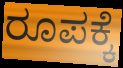
ರೂಪಕ್ಕೆ